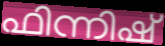
ഫിന്നിഷ്